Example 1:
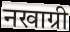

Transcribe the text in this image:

नखाग्री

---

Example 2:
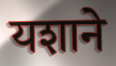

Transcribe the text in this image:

यशाने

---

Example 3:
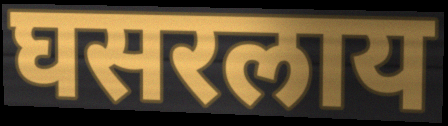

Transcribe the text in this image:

घसरलाय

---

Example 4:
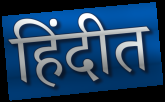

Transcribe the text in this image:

हिंदीत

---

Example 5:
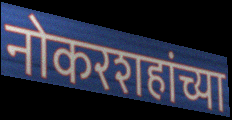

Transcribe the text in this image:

नोकरशहांच्या